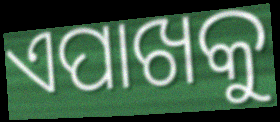
ଏପାଖକୁ